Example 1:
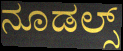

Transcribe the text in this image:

ನೂಡಲ್ಸ್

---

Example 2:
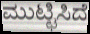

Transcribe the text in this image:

ಮುಟ್ಟಿಸಿದೆ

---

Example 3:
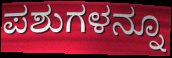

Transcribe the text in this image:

ಪಶುಗಳನ್ನೂ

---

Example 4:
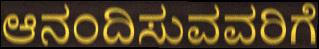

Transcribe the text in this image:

ಆನಂದಿಸುವವರಿಗೆ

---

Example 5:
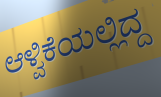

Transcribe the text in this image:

ಆಳ್ವಿಕೆಯಲ್ಲಿದ್ದ